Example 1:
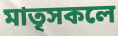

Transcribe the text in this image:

মাতৃসকলে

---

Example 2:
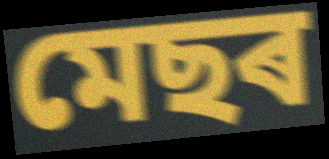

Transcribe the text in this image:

মেছৰ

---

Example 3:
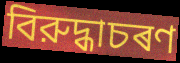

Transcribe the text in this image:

বিৰুদ্ধাচৰণ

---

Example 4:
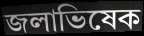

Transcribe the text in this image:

জলাভিষেক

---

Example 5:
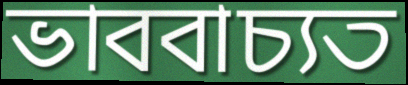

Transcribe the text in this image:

ভাববাচ্যত